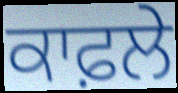
ਕਾਫ਼ਲੇ